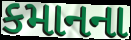
કમાનના